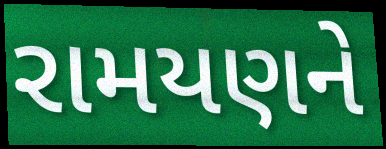
રામયણને